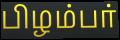
பிழம்பர்